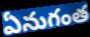
ఏనుగంత